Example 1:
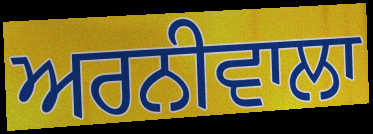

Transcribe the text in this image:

ਅਰਨੀਵਾਲਾ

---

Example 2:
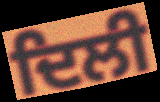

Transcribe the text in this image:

ਦਿਲੀ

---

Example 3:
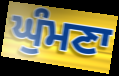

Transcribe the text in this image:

ਘੁੰਮਣਾ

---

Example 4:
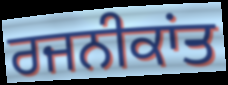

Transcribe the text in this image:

ਰਜਨੀਕਾਂਤ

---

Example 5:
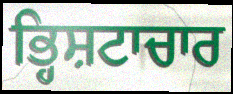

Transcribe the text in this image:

ਭ੍ਹਿਸ਼ਟਾਚਾਰ